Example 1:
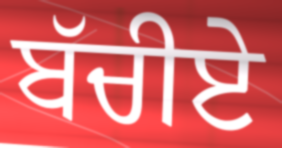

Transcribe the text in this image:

ਬੱਚੀਏ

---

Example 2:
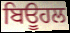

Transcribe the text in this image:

ਬਿਊਹਲ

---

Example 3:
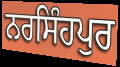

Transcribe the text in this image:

ਨਰਸਿੰਹਪੁਰ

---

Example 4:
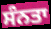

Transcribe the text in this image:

ਸੰਨਤਾ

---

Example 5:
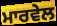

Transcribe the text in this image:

ਮਾਰਵੇਲ